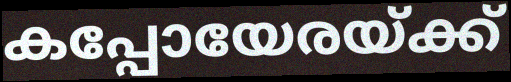
കപ്പോയേരയ്ക്ക്